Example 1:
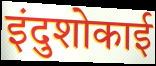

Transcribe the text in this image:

इंदुशोकाई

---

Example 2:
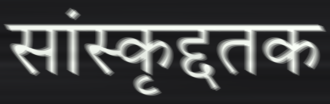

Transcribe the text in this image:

सांस्कृद्दतक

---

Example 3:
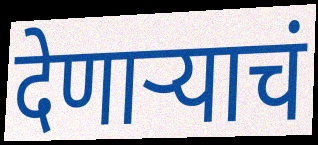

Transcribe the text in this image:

देणाऱ्याचं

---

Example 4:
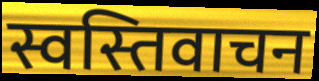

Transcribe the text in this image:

स्वस्तिवाचन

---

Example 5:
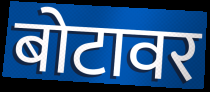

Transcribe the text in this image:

बोटावर